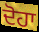
ਦੋਹਾ